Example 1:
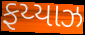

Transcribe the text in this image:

ફય્યાઝ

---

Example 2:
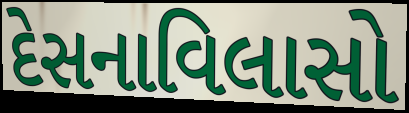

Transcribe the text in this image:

દેસનાવિલાસો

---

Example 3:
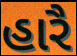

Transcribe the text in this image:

હારૈ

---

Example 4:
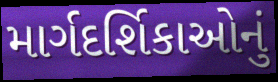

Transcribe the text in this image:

માર્ગદર્શિકાઓનું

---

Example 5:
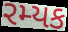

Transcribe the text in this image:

રમ્યક